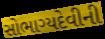
સોભાગ્યદેવીની